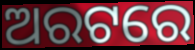
ଅରଟରେ